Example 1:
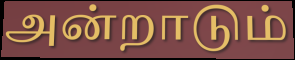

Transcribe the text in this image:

அன்றாடும்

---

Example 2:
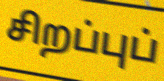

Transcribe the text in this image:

சிறப்புப்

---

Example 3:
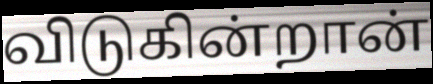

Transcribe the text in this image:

விடுகின்றான்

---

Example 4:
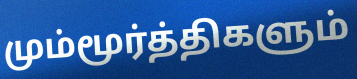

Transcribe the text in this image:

மும்மூர்த்திகளும்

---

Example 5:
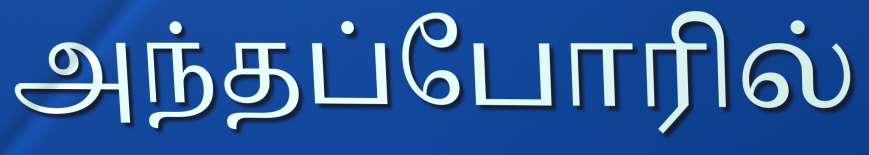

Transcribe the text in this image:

அந்தப்போரில்